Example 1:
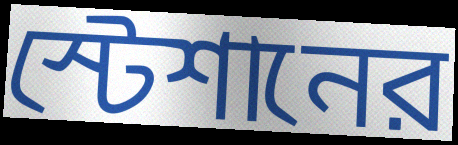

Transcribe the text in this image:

স্টেশানের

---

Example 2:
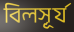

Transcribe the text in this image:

বিলসূর্য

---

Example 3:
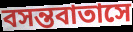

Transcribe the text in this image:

বসন্তবাতাসে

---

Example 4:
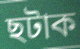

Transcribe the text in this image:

ছটাক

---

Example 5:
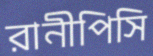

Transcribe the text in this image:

রানীপিসি